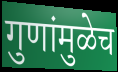
गुणांमुळेच